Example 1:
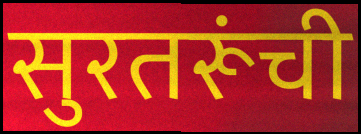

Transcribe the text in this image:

सुरतरूंची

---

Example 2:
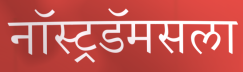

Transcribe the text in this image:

नॉस्ट्रडॅमसला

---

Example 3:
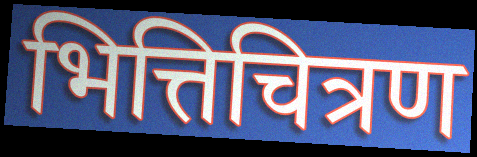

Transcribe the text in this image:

भित्तिचित्रण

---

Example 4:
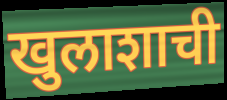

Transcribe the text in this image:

खुलाशाची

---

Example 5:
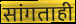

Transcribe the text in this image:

सांगताही